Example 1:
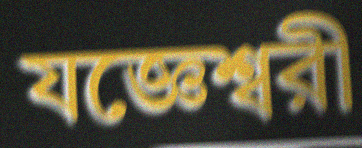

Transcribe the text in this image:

যজ্ঞেশ্বরী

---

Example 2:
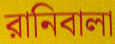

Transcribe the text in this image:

রানিবালা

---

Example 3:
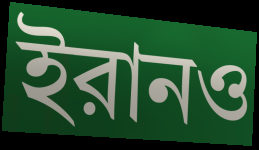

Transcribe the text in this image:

ইরানও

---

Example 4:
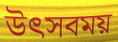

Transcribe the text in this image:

উৎসবময়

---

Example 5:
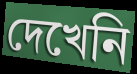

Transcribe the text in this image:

দেখেনি